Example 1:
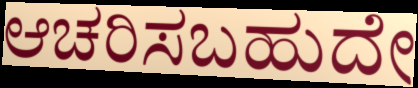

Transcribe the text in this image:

ಆಚರಿಸಬಹುದೇ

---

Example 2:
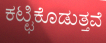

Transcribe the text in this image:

ಕಟ್ಟಿಕೊಡುತ್ತವೆ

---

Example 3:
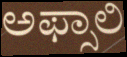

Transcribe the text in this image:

ಅಫ್ಸಾಲಿ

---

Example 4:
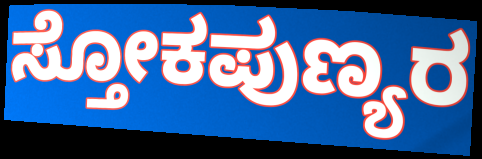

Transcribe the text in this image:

ಸ್ತೋಕಪುಣ್ಯರ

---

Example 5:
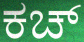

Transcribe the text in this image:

ಕಚ್